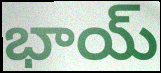
భాయ్